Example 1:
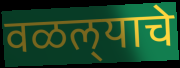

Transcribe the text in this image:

वळल्याचे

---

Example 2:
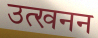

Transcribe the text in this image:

उत्‍खनन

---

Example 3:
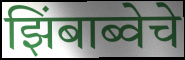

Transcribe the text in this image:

झिंबाब्वेचे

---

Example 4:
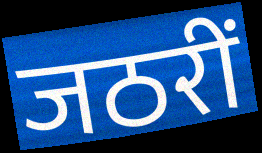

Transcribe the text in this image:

जठरीं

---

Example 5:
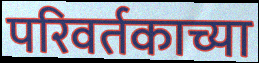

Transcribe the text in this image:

परिवर्तकाच्या